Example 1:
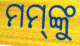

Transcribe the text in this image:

ମମ୍‌ଙ୍କୁ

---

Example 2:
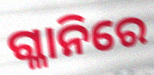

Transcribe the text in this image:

ଗ୍ଳାନିରେ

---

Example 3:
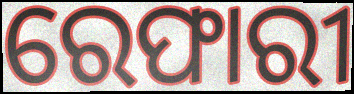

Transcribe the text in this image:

ରେଫାରୀ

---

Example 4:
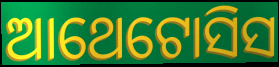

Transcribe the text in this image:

ଆଥେଟୋସିସ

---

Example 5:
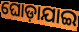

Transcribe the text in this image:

ଘୋଡ଼ାଯାଇ